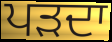
ਪੜਦਾ